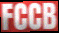
FCCB